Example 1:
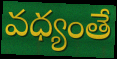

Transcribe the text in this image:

వధ్యంతే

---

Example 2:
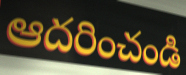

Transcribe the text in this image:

ఆదరించండి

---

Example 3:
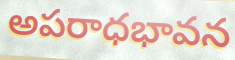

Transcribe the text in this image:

అపరాధభావన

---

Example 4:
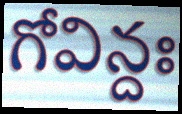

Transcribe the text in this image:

గోవిన్దః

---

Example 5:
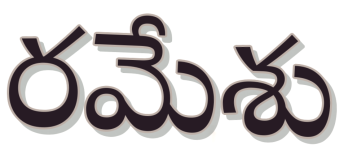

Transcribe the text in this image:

రమేశు